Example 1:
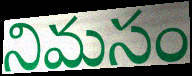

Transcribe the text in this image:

నిమసం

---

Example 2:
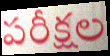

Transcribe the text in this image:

పరీక్షల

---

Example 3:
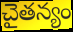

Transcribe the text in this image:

చైతన్యం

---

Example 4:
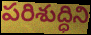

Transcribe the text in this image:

పరిశుద్ధిని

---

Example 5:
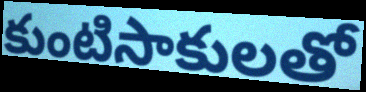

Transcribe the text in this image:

కుంటిసాకులతో